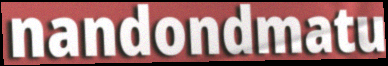
nandondmatu